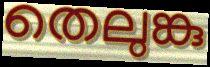
തെലുങ്കു